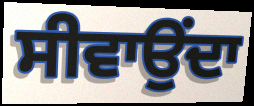
ਸੀਵਾਉਂਦਾ